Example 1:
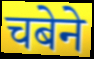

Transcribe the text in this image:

चबेने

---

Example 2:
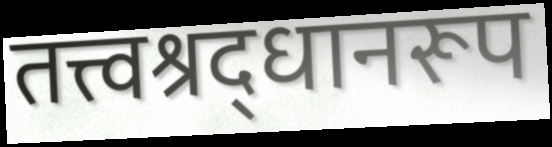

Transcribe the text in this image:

तत्त्वश्रद्धानरूप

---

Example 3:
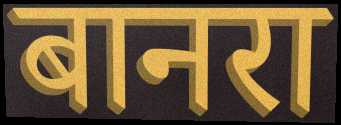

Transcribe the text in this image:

बानरा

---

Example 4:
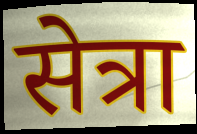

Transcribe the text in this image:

सेत्रा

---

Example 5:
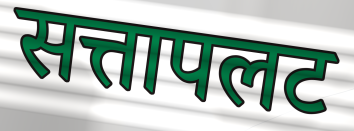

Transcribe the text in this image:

सत्तापलट